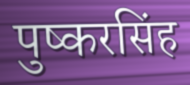
पुष्करसिंह